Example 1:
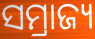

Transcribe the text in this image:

ସମ୍ରାଜ୍ୟ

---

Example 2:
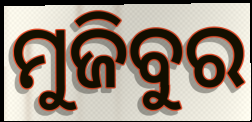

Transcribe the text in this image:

ମୁଜିବୁର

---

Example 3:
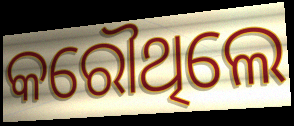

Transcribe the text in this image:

କରୌଥିଲେ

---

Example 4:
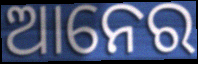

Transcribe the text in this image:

ଆନେର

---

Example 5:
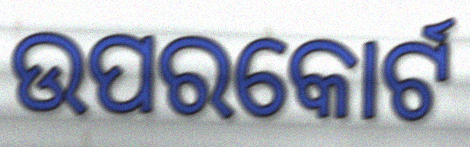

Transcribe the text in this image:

ଉପରକୋର୍ଟ